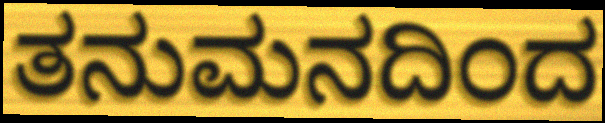
ತನುಮನದಿಂದ